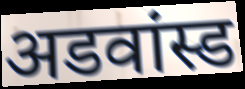
अडवांस्ड